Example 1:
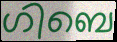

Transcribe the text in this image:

ഗിബെ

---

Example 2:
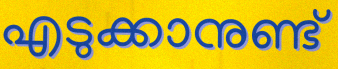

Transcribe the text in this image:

എടുക്കാനുണ്ട്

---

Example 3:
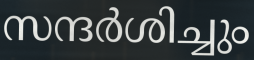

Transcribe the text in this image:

സന്ദർശിച്ചും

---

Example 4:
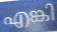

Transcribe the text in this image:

എങ്കി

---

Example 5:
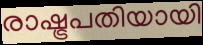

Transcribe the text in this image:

രാഷ്ട്രപതിയായി